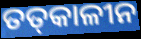
ତତ୍‌କାଳୀନ